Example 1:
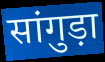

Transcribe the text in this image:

सांगुड़ा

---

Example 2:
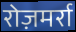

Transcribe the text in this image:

रोज़मर्रा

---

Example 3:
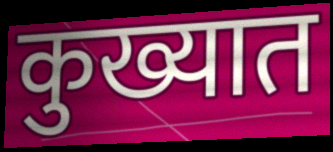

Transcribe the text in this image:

कुख्यात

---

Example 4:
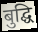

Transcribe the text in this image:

बुद्घि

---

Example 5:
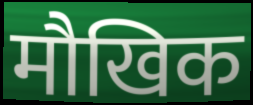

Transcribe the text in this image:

मौखिक